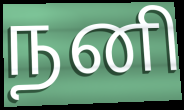
நனி